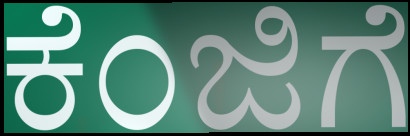
ಕೆಂಜಿಗೆ